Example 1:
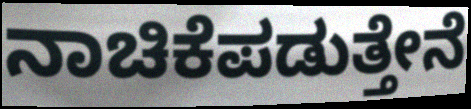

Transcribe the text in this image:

ನಾಚಿಕೆಪಡುತ್ತೇನೆ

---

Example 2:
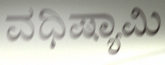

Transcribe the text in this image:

ವಧಿಷ್ಯಾಮಿ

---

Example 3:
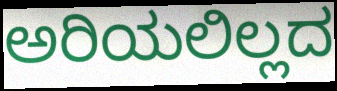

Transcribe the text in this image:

ಅರಿಯಲಿಲ್ಲದ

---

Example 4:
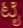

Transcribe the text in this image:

ಟೈ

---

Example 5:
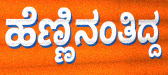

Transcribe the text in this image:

ಹೆಣ್ಣಿನಂತಿದ್ದ